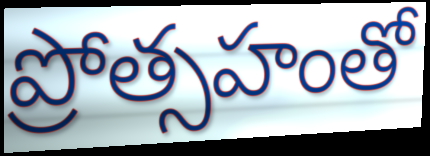
ప్రోత్సహంతో